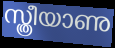
സ്ത്രീയാണു